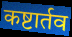
कष्टार्तव